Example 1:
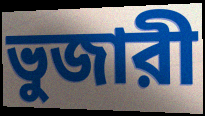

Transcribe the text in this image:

ভুজারী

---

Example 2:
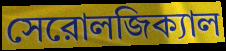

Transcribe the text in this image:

সেরোলজিক্যাল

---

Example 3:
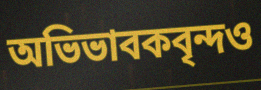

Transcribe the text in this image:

অভিভাবকবৃন্দও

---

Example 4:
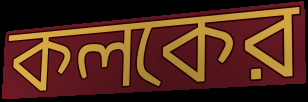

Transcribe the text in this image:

কলকের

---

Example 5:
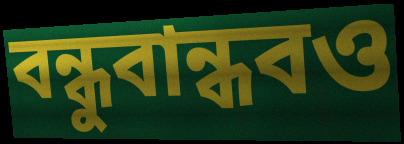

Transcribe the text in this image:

বন্ধুবান্ধবও